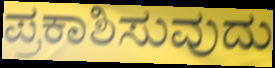
ಪ್ರಕಾಶಿಸುವುದು